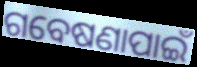
ଗବେଷଣାପାଇଁ